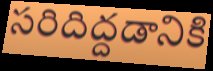
సరిదిద్దడానికి